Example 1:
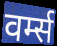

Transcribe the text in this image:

वर्म्स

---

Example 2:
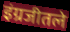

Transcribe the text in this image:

इंग्रजीतले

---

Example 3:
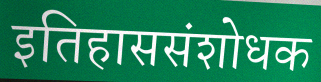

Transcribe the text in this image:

इतिहाससंशोधक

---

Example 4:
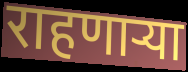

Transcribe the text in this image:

राहणार्‍या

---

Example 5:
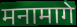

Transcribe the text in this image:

मनामागे